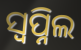
ସ୍ୱପ୍ନିଲ